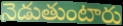
నెడుతుంటారు